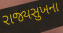
રાજ્યસુખના